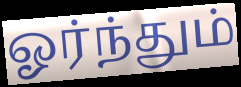
ஓர்ந்தும்